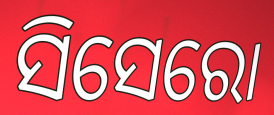
ସିସେରୋ